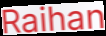
Raihan